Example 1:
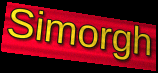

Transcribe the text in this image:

Simorgh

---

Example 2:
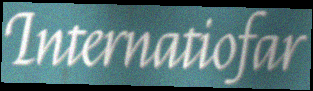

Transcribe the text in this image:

Internatiofar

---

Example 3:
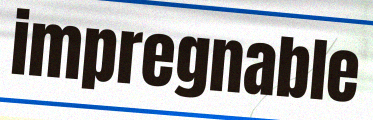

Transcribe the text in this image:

impregnable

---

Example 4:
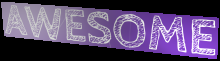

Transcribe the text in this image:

AWESOME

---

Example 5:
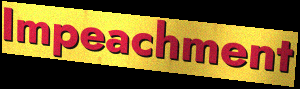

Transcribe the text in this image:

Impeachment